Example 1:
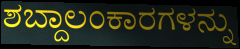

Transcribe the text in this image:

ಶಬ್ದಾಲಂಕಾರಗಳನ್ನು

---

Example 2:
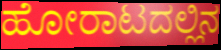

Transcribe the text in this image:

ಹೋರಾಟದಲ್ಲಿನ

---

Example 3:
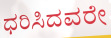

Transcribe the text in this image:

ಧರಿಸಿದವರೇ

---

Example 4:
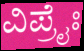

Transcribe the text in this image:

ವಿಪ್ರೈಃ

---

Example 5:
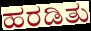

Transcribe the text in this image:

ಹರಡಿತು